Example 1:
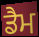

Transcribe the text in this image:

ਡੈਮ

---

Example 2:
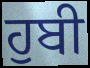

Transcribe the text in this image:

ਹੁਬੀ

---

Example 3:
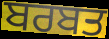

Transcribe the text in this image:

ਬਰਬਤ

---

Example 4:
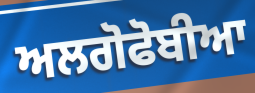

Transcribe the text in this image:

ਅਲਗੋਫੋਬੀਆ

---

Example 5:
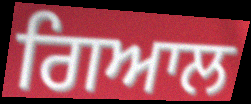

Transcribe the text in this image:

ਗਿਆਲ